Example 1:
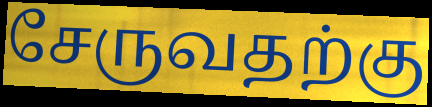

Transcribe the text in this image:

சேருவதற்கு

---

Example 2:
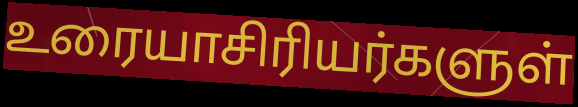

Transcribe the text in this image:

உரையாசிரியர்களுள்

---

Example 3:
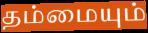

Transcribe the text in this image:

தம்மையும்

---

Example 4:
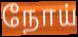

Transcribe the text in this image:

நோய்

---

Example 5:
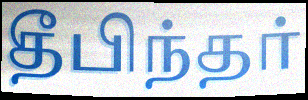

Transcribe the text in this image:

தீபிந்தர்